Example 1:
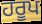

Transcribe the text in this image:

ਹਰੂਪ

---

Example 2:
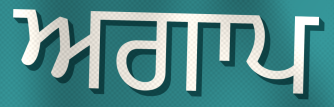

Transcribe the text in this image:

ਅਗਾਪ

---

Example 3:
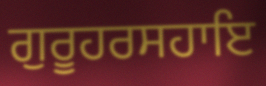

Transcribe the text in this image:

ਗੁਰੂਹਰਸਹਾਇ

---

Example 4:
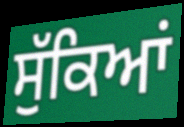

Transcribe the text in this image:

ਸੁੱਕਿਆਂ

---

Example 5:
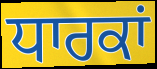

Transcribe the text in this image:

ਧਾਰਕਾਂ